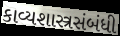
કાવ્યશાસ્ત્રસંબંધી